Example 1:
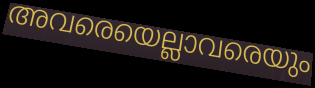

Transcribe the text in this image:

അവരെയെല്ലാവരെയും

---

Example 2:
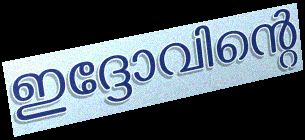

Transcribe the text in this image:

ഇദ്ദോവിന്റെ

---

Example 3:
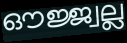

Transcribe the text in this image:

ഔജ്ജ്വല്ല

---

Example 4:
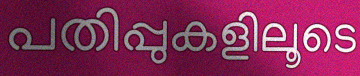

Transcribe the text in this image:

പതിപ്പുകളിലൂടെ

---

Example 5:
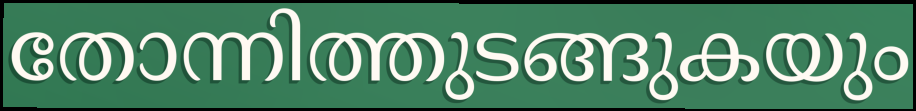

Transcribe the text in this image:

തോന്നിത്തുടങ്ങുകയും